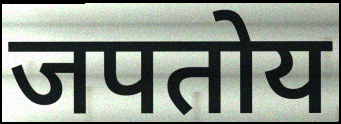
जपतोय